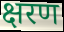
क्षरण